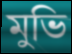
মুভি